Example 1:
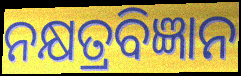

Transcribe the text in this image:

ନକ୍ଷତ୍ରବିଜ୍ଞାନ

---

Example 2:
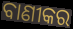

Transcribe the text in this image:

ବାଣୀକର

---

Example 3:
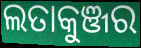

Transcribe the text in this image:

ଲତାକୁଞ୍ଜର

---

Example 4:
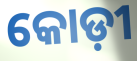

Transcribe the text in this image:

କୋଡ଼ୀ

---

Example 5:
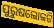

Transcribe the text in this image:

ପୁରୁଷଲୋକଟି